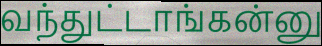
வந்துட்டாங்கன்னு